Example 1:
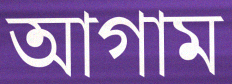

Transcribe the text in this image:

আগাম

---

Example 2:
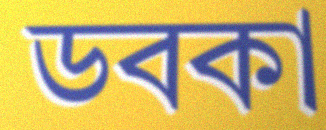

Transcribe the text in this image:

ডবকা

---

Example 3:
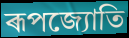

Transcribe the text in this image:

ৰূপজ্যোতি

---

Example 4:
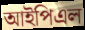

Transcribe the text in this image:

আইপিএল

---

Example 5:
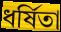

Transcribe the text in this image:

ধৰ্ষিতা